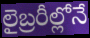
లైబ్రరీల్లోనే